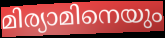
മിര്യാമിനെയും